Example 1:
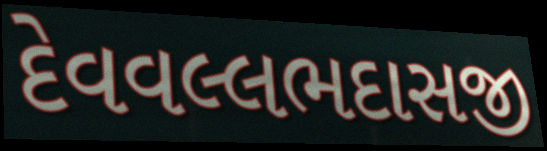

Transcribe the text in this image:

દેવવલ્લભદાસજી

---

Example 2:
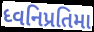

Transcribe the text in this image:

ધ્વનિપ્રતિમા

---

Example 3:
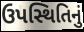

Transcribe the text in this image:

ઉપસ્થિતિનું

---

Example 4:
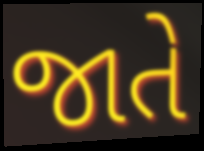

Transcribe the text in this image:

જાતે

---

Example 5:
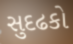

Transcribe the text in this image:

સુદઢકો